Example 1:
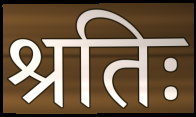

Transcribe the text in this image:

श्रतिः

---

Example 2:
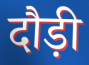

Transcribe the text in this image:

दौड़ी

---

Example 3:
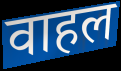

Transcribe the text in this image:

वाहल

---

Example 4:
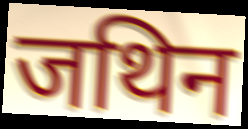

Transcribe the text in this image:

जथिन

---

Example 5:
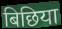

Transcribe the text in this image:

बिछिया